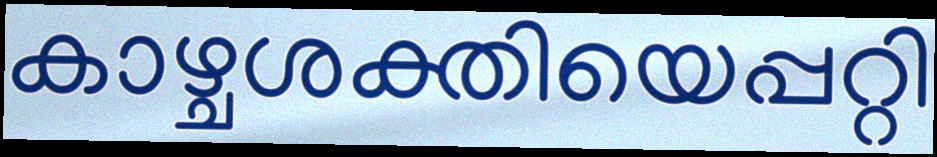
കാഴ്ചശക്തിയെപ്പറ്റി